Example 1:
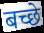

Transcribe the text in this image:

बच्छे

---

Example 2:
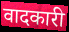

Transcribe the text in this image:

वादकारी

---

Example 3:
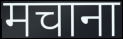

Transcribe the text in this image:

मचाना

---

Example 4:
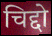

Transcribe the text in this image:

चिद्दो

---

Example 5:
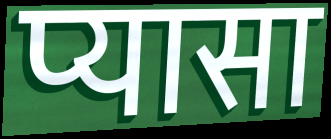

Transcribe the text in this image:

प्यासा